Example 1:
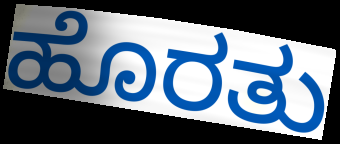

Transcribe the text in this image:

ಹೊರತು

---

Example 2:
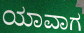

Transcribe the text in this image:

ಯಾವಾಗ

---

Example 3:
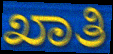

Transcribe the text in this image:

ಖಾತಿ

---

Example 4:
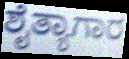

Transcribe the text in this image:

ಶೈತ್ಯಾಗಾರ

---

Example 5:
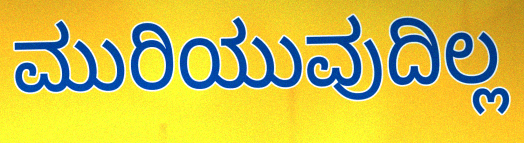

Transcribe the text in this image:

ಮುರಿಯುವುದಿಲ್ಲ